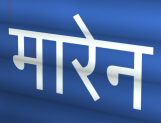
मारेन